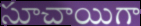
సూచాయిగా